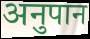
अनुपान